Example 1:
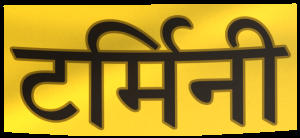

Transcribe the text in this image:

टर्मिनी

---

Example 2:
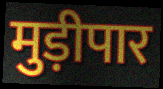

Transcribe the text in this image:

मुड़ीपार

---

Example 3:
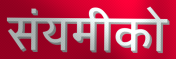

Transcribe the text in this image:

संयमीको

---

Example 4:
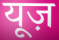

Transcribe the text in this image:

यूज़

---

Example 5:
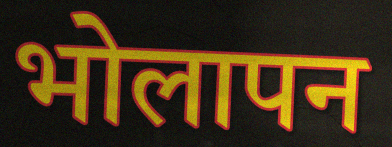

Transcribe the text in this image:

भोलापन